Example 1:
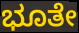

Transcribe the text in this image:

ಭೂತೇ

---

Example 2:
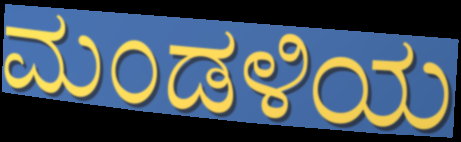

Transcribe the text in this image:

ಮಂಡಳಿಯ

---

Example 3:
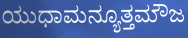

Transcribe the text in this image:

ಯುಧಾಮನ್ಯೂತ್ತಮೌಜ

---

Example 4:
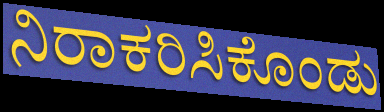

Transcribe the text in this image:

ನಿರಾಕರಿಸಿಕೊಂಡು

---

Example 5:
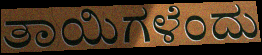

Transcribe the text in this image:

ತಾಯಿಗಳೆಂದು